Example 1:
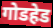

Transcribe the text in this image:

गोडहेड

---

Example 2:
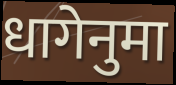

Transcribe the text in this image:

धागेनुमा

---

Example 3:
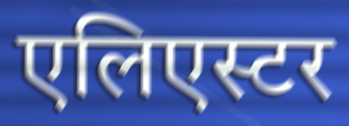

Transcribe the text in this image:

एलिएस्टर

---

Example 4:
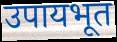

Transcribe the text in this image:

उपायभूत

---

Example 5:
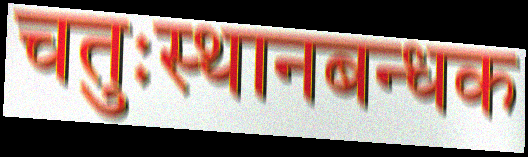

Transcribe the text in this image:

चतुःस्थानबन्धक